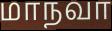
மாநவா